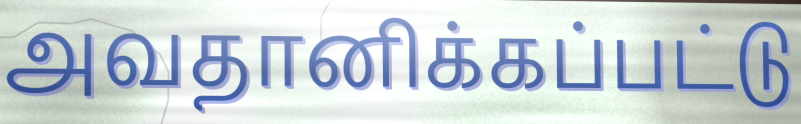
அவதானிக்கப்பட்டு